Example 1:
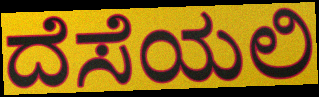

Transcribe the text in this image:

ದೆಸೆಯಲಿ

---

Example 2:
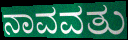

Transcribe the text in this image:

ನಾವವತು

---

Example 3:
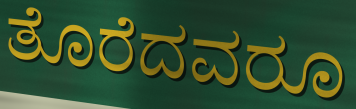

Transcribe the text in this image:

ತೊರೆದವರೂ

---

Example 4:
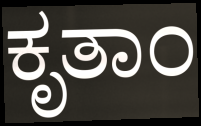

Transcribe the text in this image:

ಕೃತಾಂ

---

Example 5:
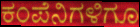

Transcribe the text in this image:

ಕಂಪೆನಿಗಳಿಗೂ